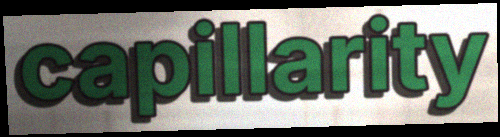
capillarity